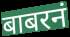
बाबरनं